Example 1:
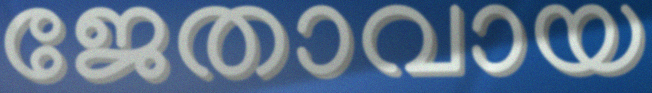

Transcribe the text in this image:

ജേതാവായ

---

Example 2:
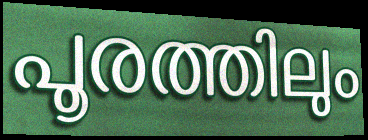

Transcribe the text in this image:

പൂരത്തിലും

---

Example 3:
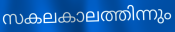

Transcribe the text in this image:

സകലകാലത്തിന്നും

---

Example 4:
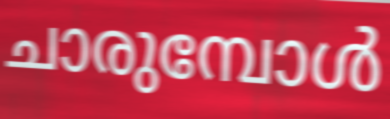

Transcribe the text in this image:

ചാരുമ്പോൾ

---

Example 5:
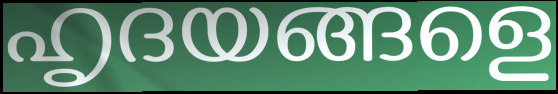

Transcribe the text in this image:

ഹൃദയങ്ങളെ